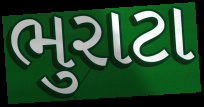
ભુરાટા